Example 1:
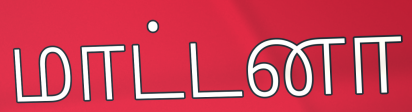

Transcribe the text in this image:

மாட்டனா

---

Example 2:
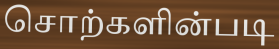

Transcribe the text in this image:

சொற்களின்படி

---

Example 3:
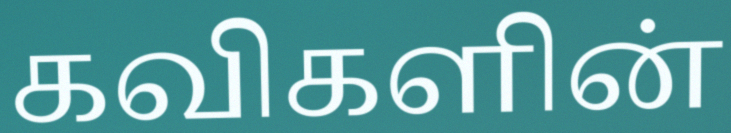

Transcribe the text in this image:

கவிகளின்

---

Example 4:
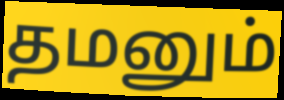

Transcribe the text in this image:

தமனும்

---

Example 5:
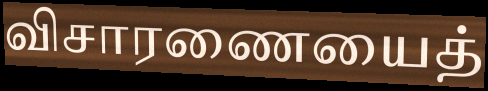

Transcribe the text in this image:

விசாரணையைத்